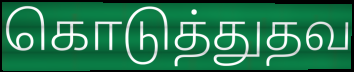
கொடுத்துதவ